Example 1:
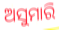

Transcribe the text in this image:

ଅସୁମାରି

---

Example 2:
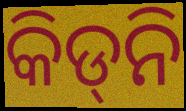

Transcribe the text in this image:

କିଡ୍‌ନି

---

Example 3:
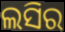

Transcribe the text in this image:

ଲସିର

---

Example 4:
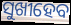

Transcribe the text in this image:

ସୁଖୀହେବ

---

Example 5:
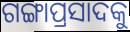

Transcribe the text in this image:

ଗଙ୍ଗାପ୍ରସାଦକୁ